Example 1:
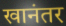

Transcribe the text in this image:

खानंतर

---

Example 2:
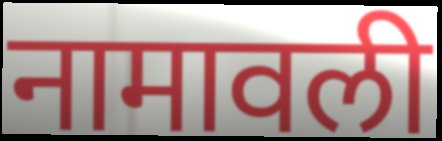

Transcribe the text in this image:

नामावली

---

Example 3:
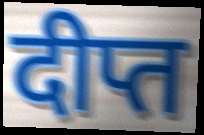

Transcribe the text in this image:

दीप्त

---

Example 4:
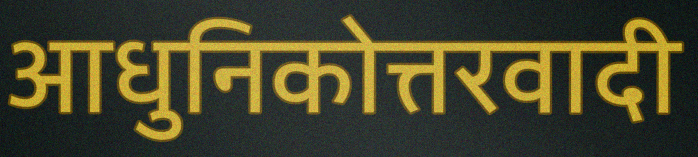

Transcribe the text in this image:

आधुनिकोत्तरवादी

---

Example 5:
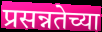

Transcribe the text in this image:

प्रसन्नतेच्या